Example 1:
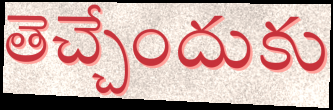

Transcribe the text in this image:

తెచ్చేందుకు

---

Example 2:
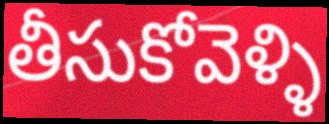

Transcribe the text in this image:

తీసుకోవెళ్ళి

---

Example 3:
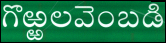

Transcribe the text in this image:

గొఱ్ఱలవెంబడి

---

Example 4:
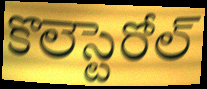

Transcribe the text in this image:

కొలెస్టెరోల్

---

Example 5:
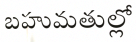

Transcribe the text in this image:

బహుమతుల్లో